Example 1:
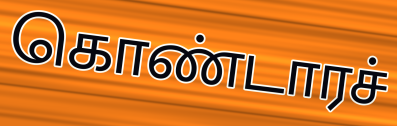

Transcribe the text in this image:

கொண்டாரச்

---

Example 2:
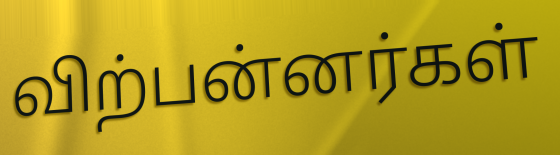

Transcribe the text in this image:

விற்பன்னர்கள்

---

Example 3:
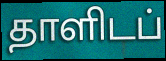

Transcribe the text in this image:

தாளிடப்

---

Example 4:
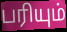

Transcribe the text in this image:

பரியும்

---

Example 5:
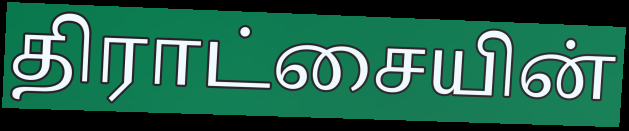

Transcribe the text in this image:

திராட்சையின்